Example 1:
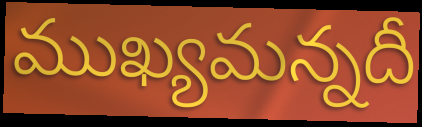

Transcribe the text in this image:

ముఖ్యమన్నదీ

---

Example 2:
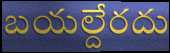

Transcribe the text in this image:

బయల్దేరదు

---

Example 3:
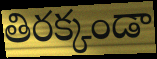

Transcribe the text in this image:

తిరక్కండా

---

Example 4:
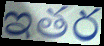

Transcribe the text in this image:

ఇతర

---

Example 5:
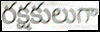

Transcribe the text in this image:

రక్షకులుగా